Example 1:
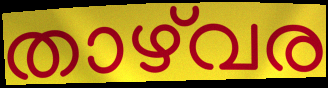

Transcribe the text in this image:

താഴ്‌വര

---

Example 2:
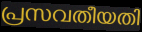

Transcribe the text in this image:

പ്രസവതീയതി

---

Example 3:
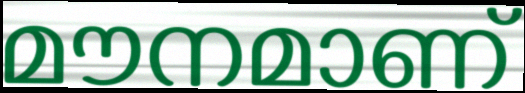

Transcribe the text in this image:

മൗനമാണ്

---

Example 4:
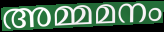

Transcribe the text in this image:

അമ്മമനം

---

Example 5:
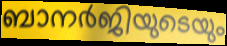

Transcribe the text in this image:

ബാനർജിയുടെയും